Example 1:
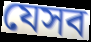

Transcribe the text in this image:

যেসব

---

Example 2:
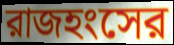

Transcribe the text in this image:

রাজহংসের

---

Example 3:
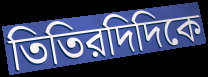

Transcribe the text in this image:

তিতিরদিদিকে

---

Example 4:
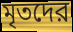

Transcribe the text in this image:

মৃতদের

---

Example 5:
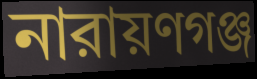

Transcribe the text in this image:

নারায়ণগঞ্জ